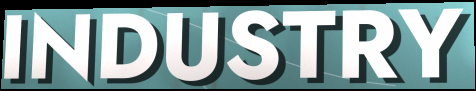
INDUSTRY